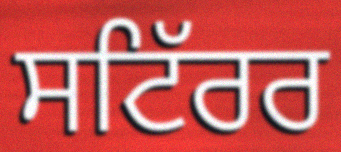
ਸਟਿੱਰਰ